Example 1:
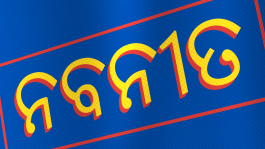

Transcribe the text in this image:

ନବନୀତ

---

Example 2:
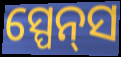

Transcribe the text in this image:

ସ୍ପେନ୍‌ସ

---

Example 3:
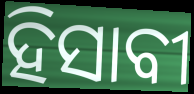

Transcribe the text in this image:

ହିସାବୀ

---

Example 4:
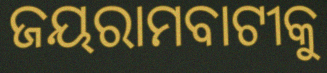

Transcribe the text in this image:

ଜୟରାମବାଟୀକୁ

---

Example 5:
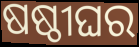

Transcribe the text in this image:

ଷଷ୍ଠୀଘର